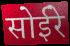
सोईरे